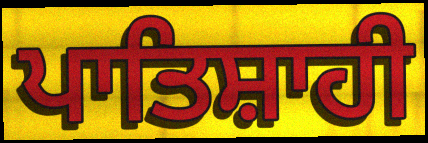
ਪਾਤਿਸ਼ਾਹੀ